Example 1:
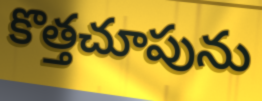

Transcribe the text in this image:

కొత్తచూపును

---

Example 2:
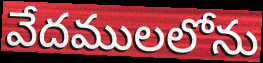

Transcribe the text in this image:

వేదములలోను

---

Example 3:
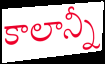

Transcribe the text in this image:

కాలాన్నీ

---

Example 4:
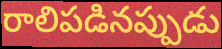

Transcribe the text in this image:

రాలిపడినప్పుడు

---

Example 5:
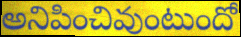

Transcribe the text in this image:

అనిపించివుంటుందో